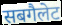
सबगैलेट